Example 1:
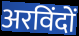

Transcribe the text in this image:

अरविंदों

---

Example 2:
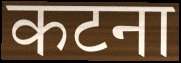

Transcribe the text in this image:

कटना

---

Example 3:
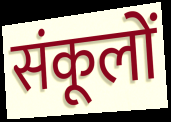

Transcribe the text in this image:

संकूलों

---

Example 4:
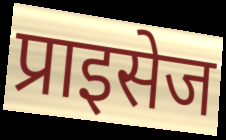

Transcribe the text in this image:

प्राइसेज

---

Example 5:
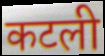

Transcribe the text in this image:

कटली